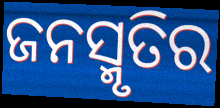
ଜନସ୍ମୃତିର